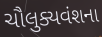
ચૌલુક્યવંશના